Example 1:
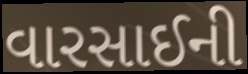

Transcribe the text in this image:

વારસાઈની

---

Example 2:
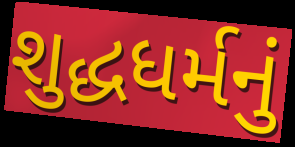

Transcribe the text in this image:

શુદ્ધધર્મનું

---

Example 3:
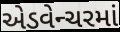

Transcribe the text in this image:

એડવેન્ચરમાં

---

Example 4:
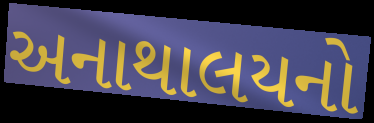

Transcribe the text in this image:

અનાથાલયનો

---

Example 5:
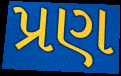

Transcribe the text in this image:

પ્રણ